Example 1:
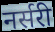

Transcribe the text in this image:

नर्सरी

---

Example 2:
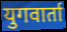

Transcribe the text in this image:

युगवार्ता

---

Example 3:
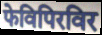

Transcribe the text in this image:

फेविपिरविर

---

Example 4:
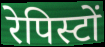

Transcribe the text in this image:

रेपिस्टों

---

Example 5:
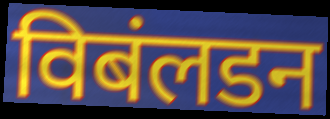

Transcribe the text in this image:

विबंलडन